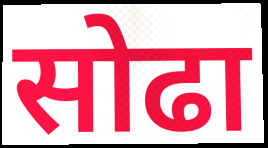
सोढा